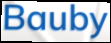
Bauby